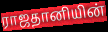
ராஜதானியின்